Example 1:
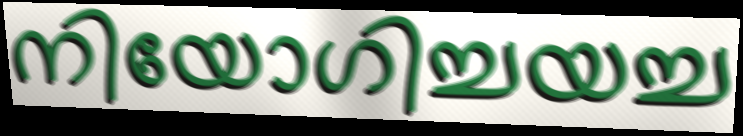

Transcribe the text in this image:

നിയോഗിച്ചയച്ച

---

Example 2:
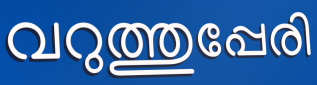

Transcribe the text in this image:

വറുത്തുപ്പേരി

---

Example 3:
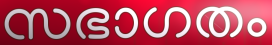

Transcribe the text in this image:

സഭാഗതം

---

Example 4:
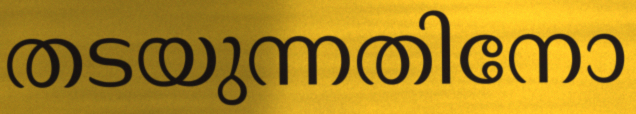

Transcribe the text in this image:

തടയുന്നതിനോ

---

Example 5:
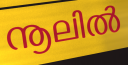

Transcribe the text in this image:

നൂലിൽ